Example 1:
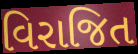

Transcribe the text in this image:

વિરાજિત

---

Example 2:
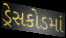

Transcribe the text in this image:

ડ્રેસકોડમાં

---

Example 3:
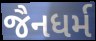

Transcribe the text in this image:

જૈનધર્મ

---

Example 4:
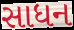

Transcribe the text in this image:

સાધન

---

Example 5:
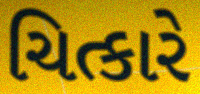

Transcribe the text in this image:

ચિત્કારે